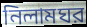
নিলামঘর